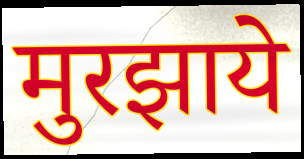
मुरझाये